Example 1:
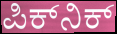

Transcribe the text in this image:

ಪಿಕ್‌ನಿಕ್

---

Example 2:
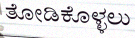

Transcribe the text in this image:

ತೋಡಿಕೊಳ್ಳಲು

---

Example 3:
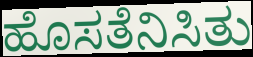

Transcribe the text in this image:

ಹೊಸತೆನಿಸಿತು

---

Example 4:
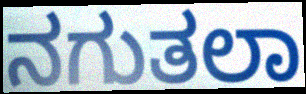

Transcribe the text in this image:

ನಗುತಲಾ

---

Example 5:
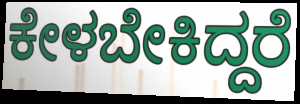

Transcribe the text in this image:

ಕೇಳಬೇಕಿದ್ದರೆ